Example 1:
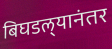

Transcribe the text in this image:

बिघडल्यानंतर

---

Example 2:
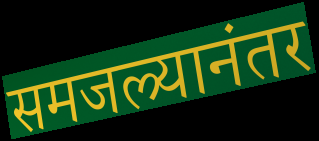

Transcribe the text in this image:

समजल्यानंतर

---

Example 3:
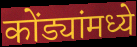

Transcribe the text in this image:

कोंड्यांमध्ये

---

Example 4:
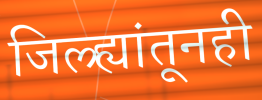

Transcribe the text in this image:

जिल्ह्यांतूनही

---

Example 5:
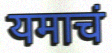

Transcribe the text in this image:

यमाचं